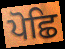
ਪੋਛਿ